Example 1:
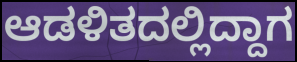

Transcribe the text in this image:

ಆಡಳಿತದಲ್ಲಿದ್ದಾಗ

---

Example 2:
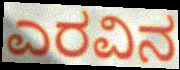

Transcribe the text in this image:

ಎರವಿನ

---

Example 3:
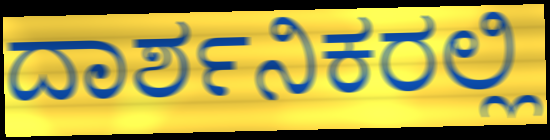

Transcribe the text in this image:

ದಾರ್ಶನಿಕರಲ್ಲಿ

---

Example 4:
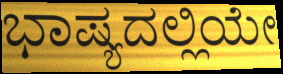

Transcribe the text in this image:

ಭಾಷ್ಯದಲ್ಲಿಯೇ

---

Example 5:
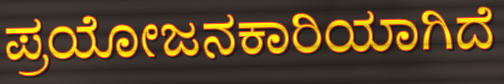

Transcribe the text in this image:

ಪ್ರಯೋಜನಕಾರಿಯಾಗಿದೆ